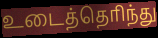
உடைத்தெரிந்து